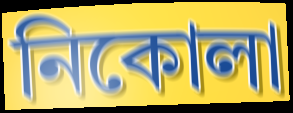
নিকোলা